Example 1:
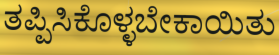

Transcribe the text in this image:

ತಪ್ಪಿಸಿಕೊಳ್ಳಬೇಕಾಯಿತು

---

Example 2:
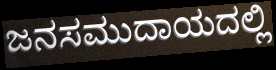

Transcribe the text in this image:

ಜನಸಮುದಾಯದಲ್ಲಿ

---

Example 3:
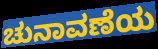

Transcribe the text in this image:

ಚುನಾವಣೆಯ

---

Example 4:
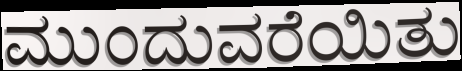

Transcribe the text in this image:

ಮುಂದುವರೆಯಿತು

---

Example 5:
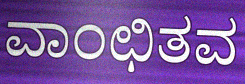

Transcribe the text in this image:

ವಾಂಛಿತವ